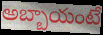
అబ్బాయంటే